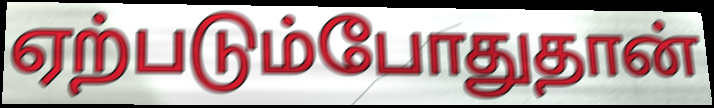
ஏற்படும்போதுதான்